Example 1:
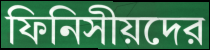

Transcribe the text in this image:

ফিনিসীয়দের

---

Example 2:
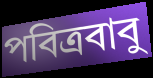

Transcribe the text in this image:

পবিত্রবাবু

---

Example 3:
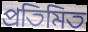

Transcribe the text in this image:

প্রতিমিত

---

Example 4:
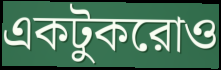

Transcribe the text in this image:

একটুকরোও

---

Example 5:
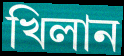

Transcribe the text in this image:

খিলান